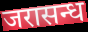
जरासन्ध